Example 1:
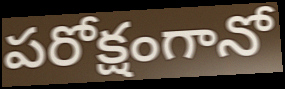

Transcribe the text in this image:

పరోక్షంగానో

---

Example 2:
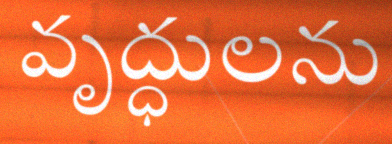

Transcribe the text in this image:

వృద్ధులను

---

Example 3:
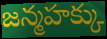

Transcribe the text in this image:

జన్మహక్కు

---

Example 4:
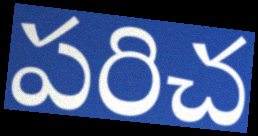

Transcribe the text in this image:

పరిచ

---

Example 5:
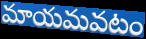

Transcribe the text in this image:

మాయమవటం